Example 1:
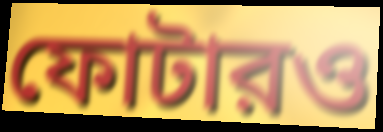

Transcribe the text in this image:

ফোটারও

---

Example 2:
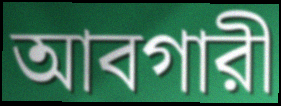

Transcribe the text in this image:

আবগারী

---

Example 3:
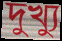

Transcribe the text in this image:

দুখ্যু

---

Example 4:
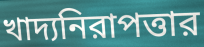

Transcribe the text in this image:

খাদ্যনিরাপত্তার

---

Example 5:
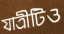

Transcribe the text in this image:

যাত্রীটিও